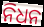
ନିଧନ